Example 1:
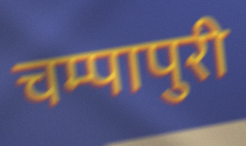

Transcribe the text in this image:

चम्पापुरी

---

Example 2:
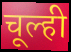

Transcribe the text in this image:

चूल्ही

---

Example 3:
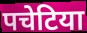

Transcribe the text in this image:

पचेटिया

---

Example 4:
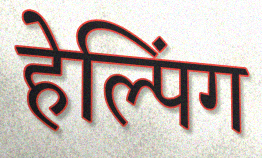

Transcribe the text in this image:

हेल्पिंग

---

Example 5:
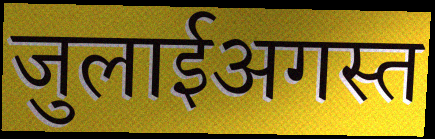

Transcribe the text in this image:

जुलाईअगस्त